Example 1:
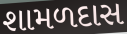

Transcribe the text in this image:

શામળદાસ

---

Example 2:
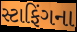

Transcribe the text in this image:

સ્ટાફિંગના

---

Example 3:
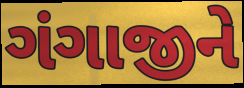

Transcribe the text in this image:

ગંગાજીને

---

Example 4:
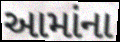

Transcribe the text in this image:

આમાંના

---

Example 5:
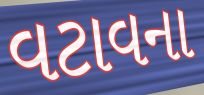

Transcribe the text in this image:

વટાવના